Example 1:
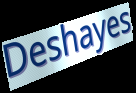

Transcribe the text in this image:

Deshayes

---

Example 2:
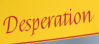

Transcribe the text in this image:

Desperation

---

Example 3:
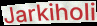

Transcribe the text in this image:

Jarkiholi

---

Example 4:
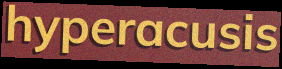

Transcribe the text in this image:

hyperacusis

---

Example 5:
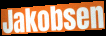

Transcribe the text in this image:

Jakobsen